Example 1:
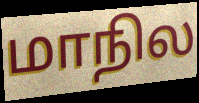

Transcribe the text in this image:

மாநில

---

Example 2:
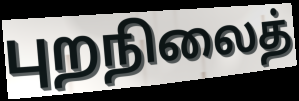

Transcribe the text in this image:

புறநிலைத்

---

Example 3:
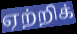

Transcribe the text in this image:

ஏற்றிக்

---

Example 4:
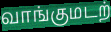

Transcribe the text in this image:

வாங்குமடற்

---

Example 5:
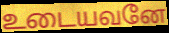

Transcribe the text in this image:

உடையவனே